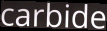
carbide